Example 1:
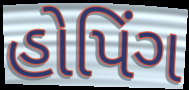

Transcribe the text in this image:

હોપિંગ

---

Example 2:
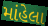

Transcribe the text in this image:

માંહેલા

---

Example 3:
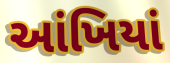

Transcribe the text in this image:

આંખિયાં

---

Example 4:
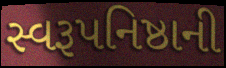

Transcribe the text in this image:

સ્વરૂપનિષ્ઠાની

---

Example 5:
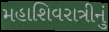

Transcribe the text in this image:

મહાશિવરાત્રીનું